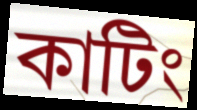
কাটিং